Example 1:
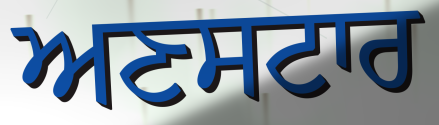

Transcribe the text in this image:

ਅਣਸਟਾਰ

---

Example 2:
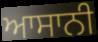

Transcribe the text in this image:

ਆਸਾਨੀ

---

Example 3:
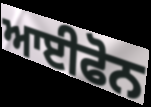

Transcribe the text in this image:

ਆਈਫੋਨ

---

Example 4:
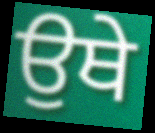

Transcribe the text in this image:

ਉਥੇ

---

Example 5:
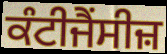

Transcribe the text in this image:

ਕੰਟੀਜੈਂਸੀਜ਼